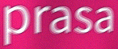
prasa